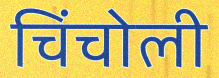
चिंचोली